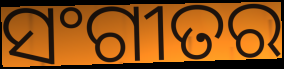
ସଂଗୀତର